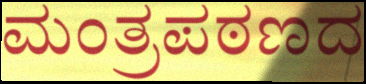
ಮಂತ್ರಪಠಣದ